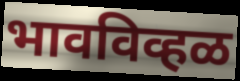
भावविव्हळ